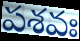
పశవః